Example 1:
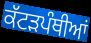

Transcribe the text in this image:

ਕੱਟੜਪੰਥੀਆਂ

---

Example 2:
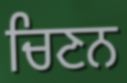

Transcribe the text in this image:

ਚਿਣਨ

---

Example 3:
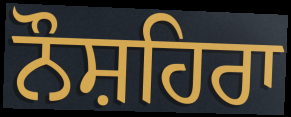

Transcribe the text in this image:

ਨੌਸ਼ਹਿਰਾ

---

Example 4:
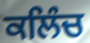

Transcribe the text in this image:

ਕਲਿੰਚ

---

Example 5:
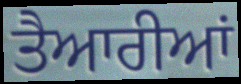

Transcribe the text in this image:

ਤੈਆਰੀਆਂ